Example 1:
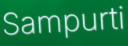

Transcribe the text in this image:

Sampurti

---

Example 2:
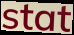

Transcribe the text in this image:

stat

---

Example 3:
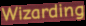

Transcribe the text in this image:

Wizarding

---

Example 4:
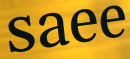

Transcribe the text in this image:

saee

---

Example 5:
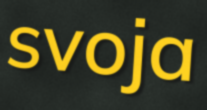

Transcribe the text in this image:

svoja